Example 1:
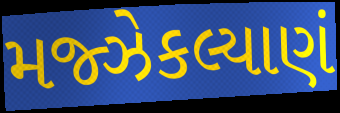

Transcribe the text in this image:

મજ્ઝેકલ્યાણં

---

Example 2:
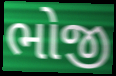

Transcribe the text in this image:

ભોજી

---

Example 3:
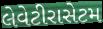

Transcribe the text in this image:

લેવેટીરાસેટમ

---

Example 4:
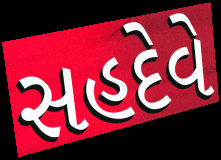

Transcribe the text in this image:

સહદેવે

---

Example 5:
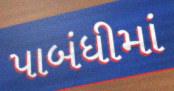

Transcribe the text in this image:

પાબંધીમાં